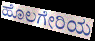
ಹೊಲಗೇರಿಯ